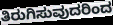
ತಿರುಗಿಸುವುದರಿಂದ